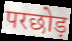
परछोड़